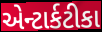
એન્ટાર્કટીકા